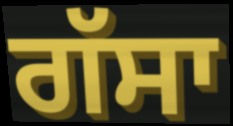
ਗੱਸਾ